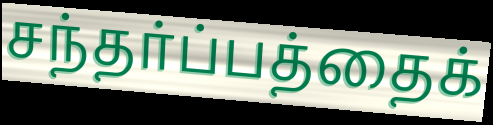
சந்தர்ப்பத்தைக்